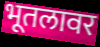
भूतलावर